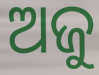
ଅଜୁ